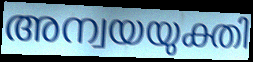
അന്വയയുക്തി